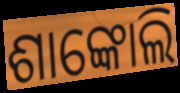
ଶାଙ୍କୋଲି